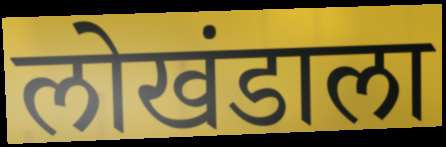
लोखंडाला